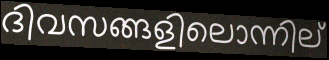
ദിവസങ്ങളിലൊന്നില്